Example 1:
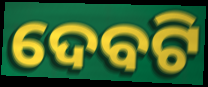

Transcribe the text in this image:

ଦେବଟି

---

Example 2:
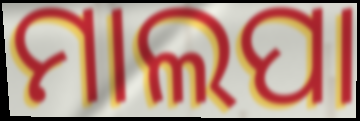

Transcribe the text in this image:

ମାଲପା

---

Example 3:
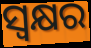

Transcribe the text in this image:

ସ୍ୱକ୍ଷର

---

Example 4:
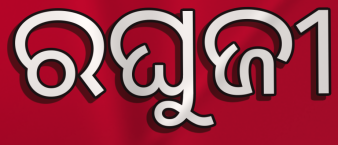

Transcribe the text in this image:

ରଘୁଜୀ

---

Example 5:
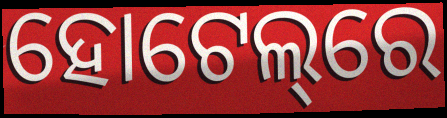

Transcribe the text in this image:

ହୋଟେଲ୍‌ରେ